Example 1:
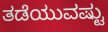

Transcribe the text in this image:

ತಡೆಯುವಷ್ಟು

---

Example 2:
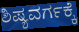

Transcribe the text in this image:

ಶಿಷ್ಯವರ್ಗಕ್ಕೆ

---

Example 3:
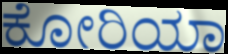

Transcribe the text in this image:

ಕೋರಿಯಾ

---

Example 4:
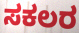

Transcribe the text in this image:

ಸಕಲರ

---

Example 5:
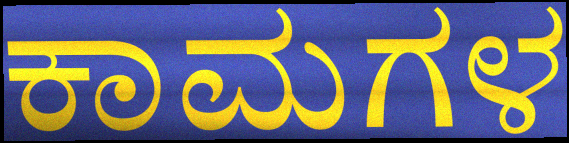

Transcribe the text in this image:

ಕಾಮಗಳ